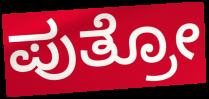
ಪುತ್ರೋ